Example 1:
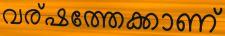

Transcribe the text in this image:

വര്ഷത്തേക്കാണ്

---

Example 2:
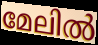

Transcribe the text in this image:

മേലിൽ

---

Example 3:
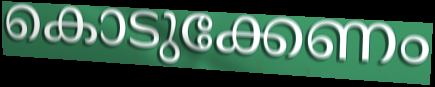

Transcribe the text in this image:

കൊടുക്കേണം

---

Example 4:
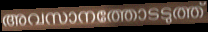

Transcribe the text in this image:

അവസാനത്തോടടുത്ത്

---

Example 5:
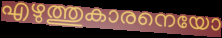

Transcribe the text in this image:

എഴുത്തുകാരനെയോ